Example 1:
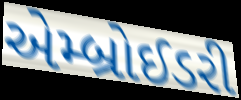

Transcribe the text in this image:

એમ્બ્રોઈડરી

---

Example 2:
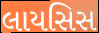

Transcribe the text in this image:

લાયસિસ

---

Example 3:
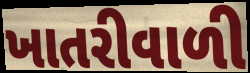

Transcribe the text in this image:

ખાતરીવાળી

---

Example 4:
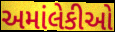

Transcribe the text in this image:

અમાંલેકીઓ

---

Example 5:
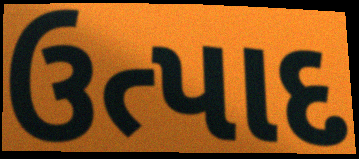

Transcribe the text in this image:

ઉત્પાદ